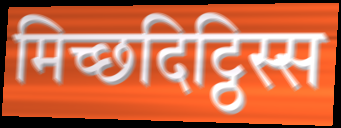
मिच्छदिट्ठिस्स